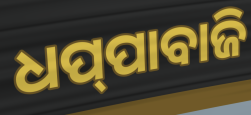
ଧପ୍‌ପାବାଜି